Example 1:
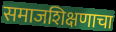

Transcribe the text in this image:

समाजशिक्षणाचा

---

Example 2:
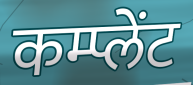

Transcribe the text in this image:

कम्प्लेंट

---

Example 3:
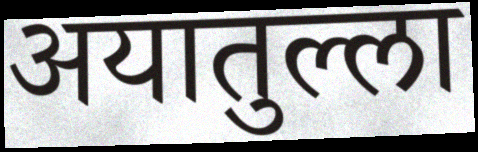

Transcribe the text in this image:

अयातुल्ला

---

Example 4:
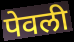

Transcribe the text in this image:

पेवली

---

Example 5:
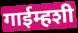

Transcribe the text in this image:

गाईम्हशी